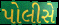
પોલીસે